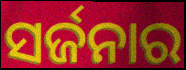
ସର୍ଜନାର